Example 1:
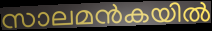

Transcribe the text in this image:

സാലമൻകയിൽ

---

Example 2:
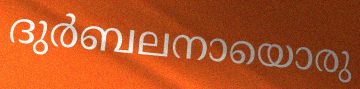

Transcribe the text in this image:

ദുർബലനായൊരു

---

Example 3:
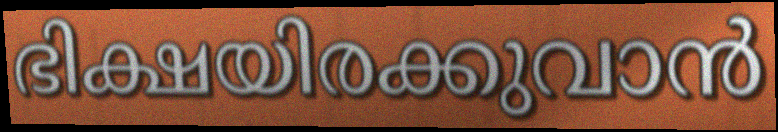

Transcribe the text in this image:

ഭിക്ഷയിരക്കുവാൻ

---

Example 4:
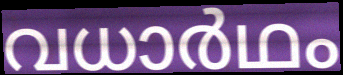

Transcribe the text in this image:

വധാർഥം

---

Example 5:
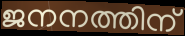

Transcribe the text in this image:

ജനനത്തിന്